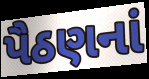
પૈઠણનાં